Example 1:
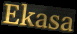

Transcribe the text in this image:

Ekasa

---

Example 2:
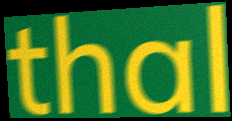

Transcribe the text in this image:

thal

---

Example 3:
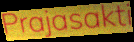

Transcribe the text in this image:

Prajasakti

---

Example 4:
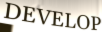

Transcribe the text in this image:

DEVELOP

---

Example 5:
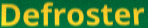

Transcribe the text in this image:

Defroster